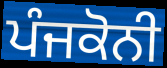
ਪੰਜਕੋਨੀ